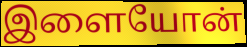
இளையோன்